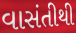
વાસંતીથી